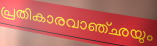
പ്രതികാരവാഞ്ഛയും